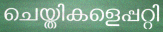
ചെയ്തികളെപ്പറ്റി